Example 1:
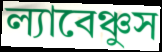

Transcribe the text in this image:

ল্যাবেঞ্চুস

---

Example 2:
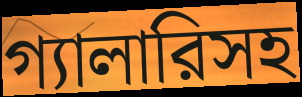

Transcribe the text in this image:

গ্যালারিসহ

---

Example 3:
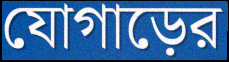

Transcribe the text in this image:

যোগাড়ের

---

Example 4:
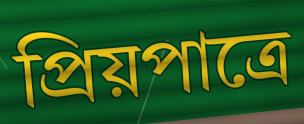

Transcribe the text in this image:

প্রিয়পাত্রে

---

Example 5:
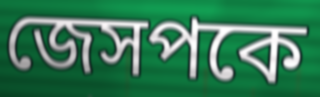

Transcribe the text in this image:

জেসপকে